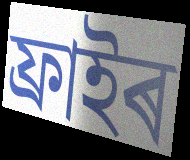
ফ্ৰাইৰ